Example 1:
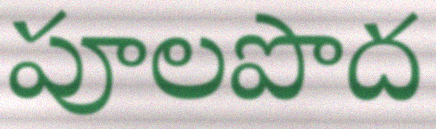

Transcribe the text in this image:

పూలపొద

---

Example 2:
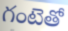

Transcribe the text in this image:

గంటెతో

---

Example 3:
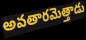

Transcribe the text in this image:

అవతారమెత్తాడు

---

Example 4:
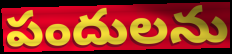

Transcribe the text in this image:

పందులను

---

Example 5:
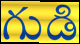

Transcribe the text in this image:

గుడి